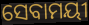
ସେବାମୟୀ